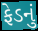
ફેડનું